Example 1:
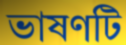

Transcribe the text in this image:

ভাষণটি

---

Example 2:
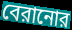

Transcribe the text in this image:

বেরানোর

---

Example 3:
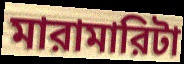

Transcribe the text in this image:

মারামারিটা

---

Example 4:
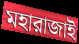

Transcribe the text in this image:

মহারাজাই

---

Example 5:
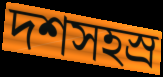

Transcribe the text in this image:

দশসহস্র